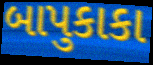
બાપુકાકા